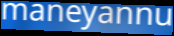
maneyannu